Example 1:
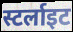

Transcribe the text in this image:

स्टर्लाइट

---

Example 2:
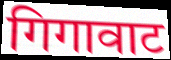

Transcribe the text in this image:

गिगावाट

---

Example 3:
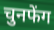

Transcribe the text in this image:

चुनफेंग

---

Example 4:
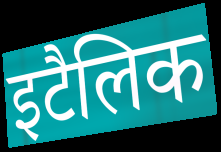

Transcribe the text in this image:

इटैलिक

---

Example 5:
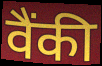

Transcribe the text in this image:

वैंकी